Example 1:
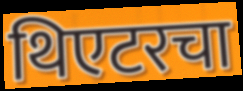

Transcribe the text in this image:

थिएटरचा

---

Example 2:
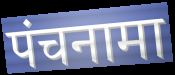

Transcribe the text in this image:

पंचनामा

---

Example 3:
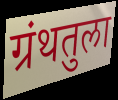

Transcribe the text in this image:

ग्रंथतुला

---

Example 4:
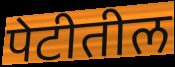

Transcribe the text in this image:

पेटीतील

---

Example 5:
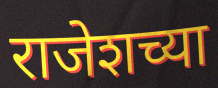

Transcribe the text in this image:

राजेशच्या